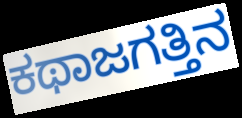
ಕಥಾಜಗತ್ತಿನ